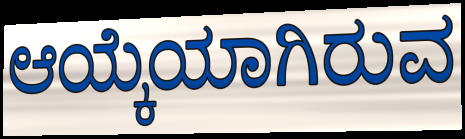
ಆಯ್ಕೆಯಾಗಿರುವ